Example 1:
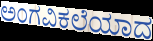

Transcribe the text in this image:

ಅಂಗವಿಕಲೆಯಾದ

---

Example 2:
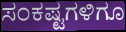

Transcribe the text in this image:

ಸಂಕಷ್ಟಗಳಿಗೂ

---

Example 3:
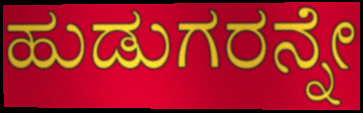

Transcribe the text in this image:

ಹುಡುಗರನ್ನೇ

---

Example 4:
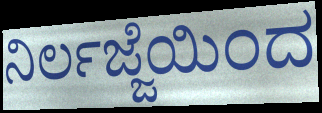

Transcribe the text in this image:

ನಿರ್ಲಜ್ಜೆಯಿಂದ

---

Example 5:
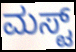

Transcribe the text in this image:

ಮಸ್ಟ್